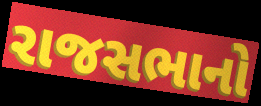
રાજસભાનો